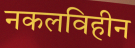
नकलविहीन